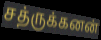
சத்ருக்கனன்